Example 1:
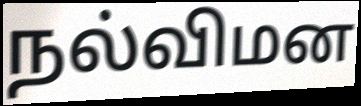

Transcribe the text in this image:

நல்விமன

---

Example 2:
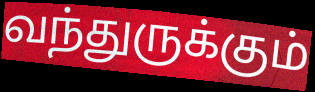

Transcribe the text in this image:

வந்துருக்கும்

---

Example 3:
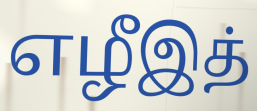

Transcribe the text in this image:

எழீஇத்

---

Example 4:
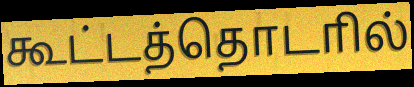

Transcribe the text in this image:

கூட்டத்தொடரில்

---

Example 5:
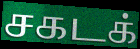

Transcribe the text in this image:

சகடக்